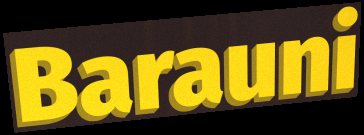
Barauni